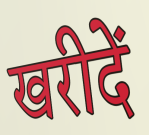
खरीदें